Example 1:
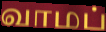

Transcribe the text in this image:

வாமப்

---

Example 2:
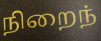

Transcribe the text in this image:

நிறைந்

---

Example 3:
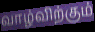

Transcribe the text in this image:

வாழ்விற்கும்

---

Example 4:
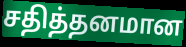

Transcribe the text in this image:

சதித்தனமான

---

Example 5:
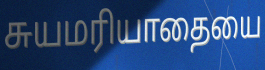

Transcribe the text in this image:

சுயமரியாதையை